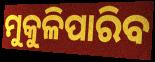
ମୁକୁଳିପାରିବ